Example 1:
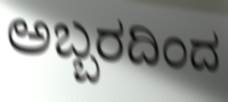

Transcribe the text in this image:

ಅಬ್ಬರದಿಂದ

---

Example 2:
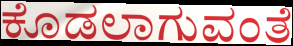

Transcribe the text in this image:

ಕೊಡಲಾಗುವಂತೆ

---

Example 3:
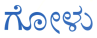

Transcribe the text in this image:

ಗೋಳು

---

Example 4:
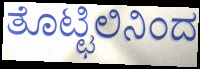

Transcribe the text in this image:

ತೊಟ್ಟಿಲಿನಿಂದ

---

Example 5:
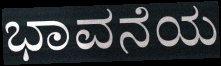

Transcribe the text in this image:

ಭಾವನೆಯ